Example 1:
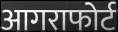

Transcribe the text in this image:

आगराफोर्ट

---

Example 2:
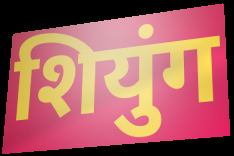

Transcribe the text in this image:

शियुंग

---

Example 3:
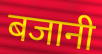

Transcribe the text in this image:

बजानी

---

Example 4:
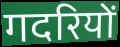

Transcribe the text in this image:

गदरियों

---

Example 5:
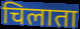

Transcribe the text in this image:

चिलाता